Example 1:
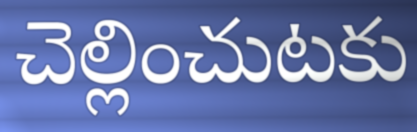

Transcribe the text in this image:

చెల్లించుటకు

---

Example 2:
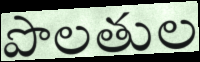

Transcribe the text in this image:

పొలతుల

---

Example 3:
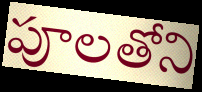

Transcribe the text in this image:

పూలతోని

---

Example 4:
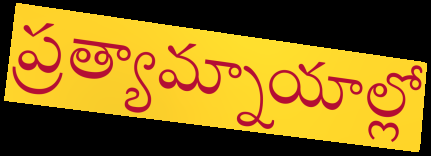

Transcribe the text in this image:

ప్రత్యామ్నాయాల్లో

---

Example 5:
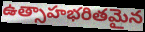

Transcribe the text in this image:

ఉత్సాహభరితమైన